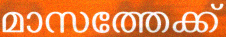
മാസത്തേക്ക്